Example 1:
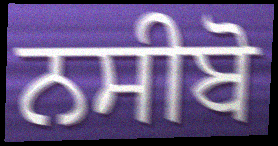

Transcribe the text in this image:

ਨਸੀਬੋ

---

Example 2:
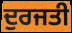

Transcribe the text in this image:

ਦੁਰਜਤੀ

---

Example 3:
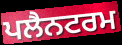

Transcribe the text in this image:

ਪਲੈਨਟਰਮ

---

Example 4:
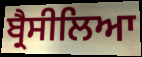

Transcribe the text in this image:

ਬ੍ਰੈਸੀਲਿਆ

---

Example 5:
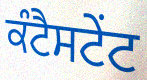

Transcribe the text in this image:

ਕੰਟੈਸਟੇਂਟ